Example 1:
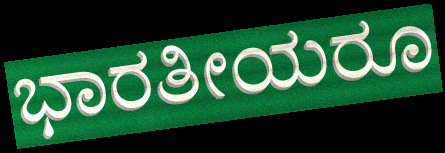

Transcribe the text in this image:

ಭಾರತೀಯರೂ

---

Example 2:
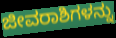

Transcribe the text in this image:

ಜೀವರಾಶಿಗಳನ್ನು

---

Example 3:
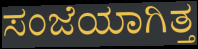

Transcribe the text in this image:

ಸಂಜೆಯಾಗಿತ್ತ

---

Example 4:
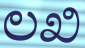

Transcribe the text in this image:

ಲಖಿ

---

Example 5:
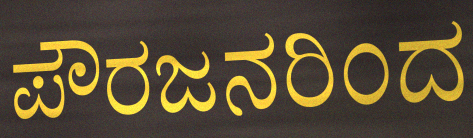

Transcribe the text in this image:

ಪೌರಜನರಿಂದ